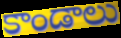
కాండాలు